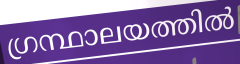
ഗ്രന്ഥാലയത്തിൽ